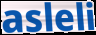
asleli